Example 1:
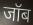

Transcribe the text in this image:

जॉब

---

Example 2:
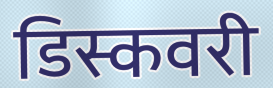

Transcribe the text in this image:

डिस्कवरी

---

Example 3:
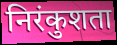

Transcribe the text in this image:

निरंकुशता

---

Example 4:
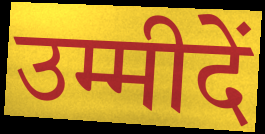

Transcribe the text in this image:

उम्मीदें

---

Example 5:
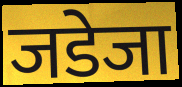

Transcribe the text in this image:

जडेजा